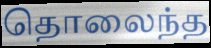
தொலைந்த